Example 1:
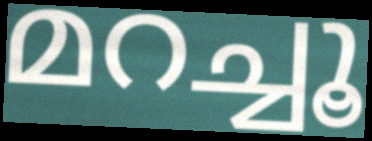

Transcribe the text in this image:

മറച്ചൂ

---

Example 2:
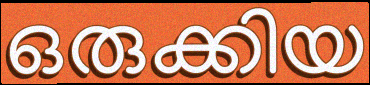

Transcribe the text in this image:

ഒരുക്കിയ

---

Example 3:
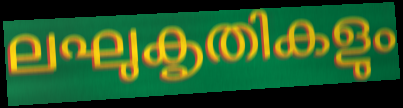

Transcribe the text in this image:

ലഘുകൃതികളും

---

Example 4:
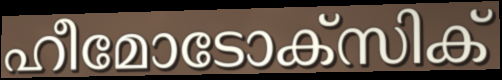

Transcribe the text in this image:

ഹീമോടോക്സിക്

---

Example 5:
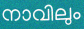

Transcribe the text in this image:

നാവിലും